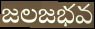
జలజభవ